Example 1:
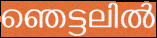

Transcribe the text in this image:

ഞെട്ടലിൽ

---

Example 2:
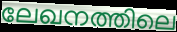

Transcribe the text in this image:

ലേഖനത്തിലെ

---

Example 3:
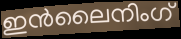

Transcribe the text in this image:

ഇൻലൈനിംഗ്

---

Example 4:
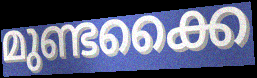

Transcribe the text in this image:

മുണ്ടക്കൈ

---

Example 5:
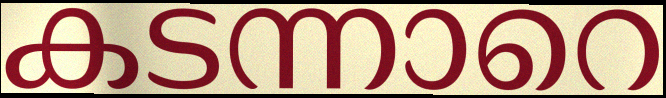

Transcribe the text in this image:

കടന്നാറെ